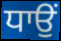
ਧਾਉਂ